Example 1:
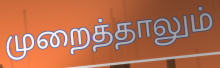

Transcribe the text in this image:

முறைத்தாலும்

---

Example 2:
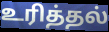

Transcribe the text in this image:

உரித்தல்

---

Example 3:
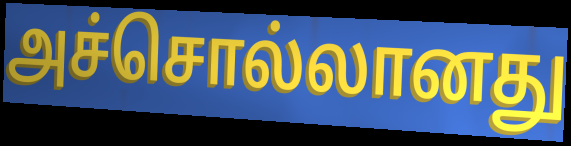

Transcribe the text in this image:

அச்சொல்லானது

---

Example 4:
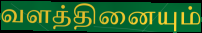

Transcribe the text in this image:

வளத்தினையும்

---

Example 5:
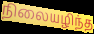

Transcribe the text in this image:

நிலையழிந்த